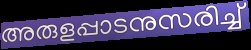
അരുളപ്പാടനുസരിച്ച്